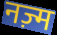
नज़्म